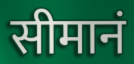
सीमानं